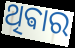
ଥିଵାର